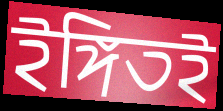
ইঙ্গিতই